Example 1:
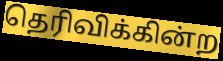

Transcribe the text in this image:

தெரிவிக்கின்ற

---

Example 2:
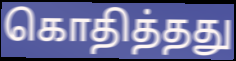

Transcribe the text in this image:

கொதித்தது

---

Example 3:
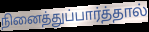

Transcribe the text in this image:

நினைத்துப்பார்த்தால்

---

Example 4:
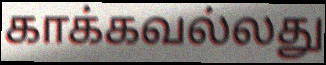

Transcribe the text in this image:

காக்கவல்லது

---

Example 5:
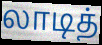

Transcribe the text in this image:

லாடித்